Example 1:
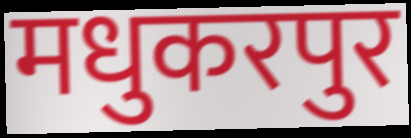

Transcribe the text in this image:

मधुकरपुर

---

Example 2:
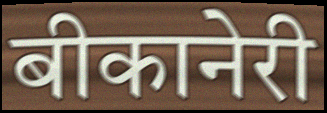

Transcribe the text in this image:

बीकानेरी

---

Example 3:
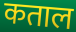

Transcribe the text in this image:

कताल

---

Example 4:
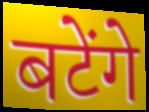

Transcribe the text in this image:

बटेंगे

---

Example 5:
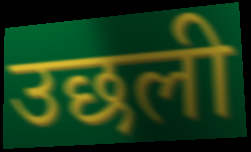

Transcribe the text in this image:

उछली